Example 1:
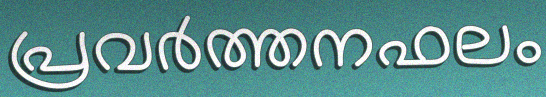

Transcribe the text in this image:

പ്രവർത്തനഫലം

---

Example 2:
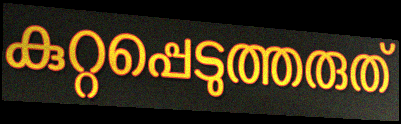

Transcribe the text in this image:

കുറ്റപ്പെടുത്തരുത്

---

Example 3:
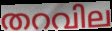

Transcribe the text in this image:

തറവില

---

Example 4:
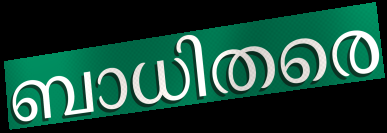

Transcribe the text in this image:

ബാധിതരെ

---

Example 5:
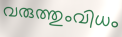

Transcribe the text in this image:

വരുത്തുംവിധം